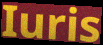
Iuris